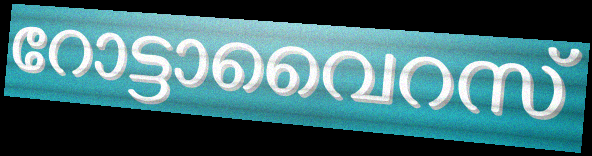
റോട്ടാവൈറസ്